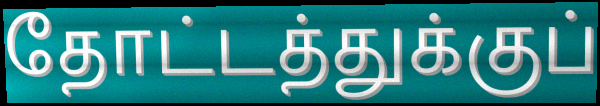
தோட்டத்துக்குப்